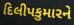
દિલીપકુમારને